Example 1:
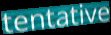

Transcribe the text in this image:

tentative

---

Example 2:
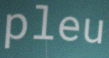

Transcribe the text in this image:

pleu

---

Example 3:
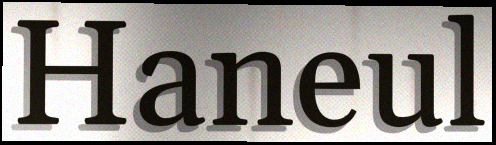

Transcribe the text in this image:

Haneul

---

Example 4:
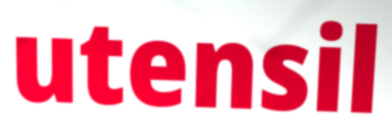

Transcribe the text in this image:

utensil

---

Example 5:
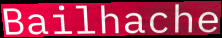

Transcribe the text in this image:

Bailhache